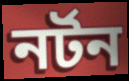
নৰ্টন